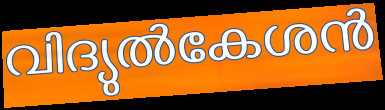
വിദ്യുൽകേശൻ